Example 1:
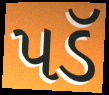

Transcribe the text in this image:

પડૅ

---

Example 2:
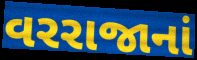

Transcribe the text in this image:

વરરાજાનાં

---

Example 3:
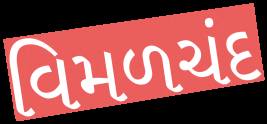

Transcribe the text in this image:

વિમળચંદ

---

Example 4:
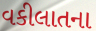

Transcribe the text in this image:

વકીલાતના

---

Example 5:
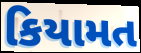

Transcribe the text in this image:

કિયામત